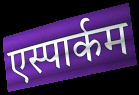
एस्पार्कम